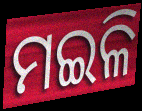
ମଇଳି